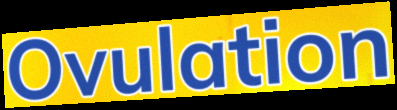
Ovulation